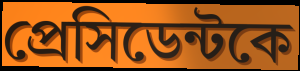
প্রেসিডেন্টকে